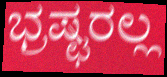
ಭ್ರಷ್ಟರಲ್ಲ